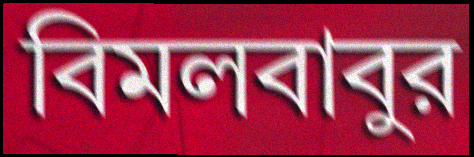
বিমলবাবুর